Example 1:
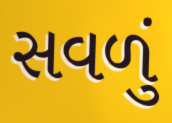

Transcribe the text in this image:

સવળું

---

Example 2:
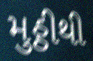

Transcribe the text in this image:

મુઠ્ઠીથી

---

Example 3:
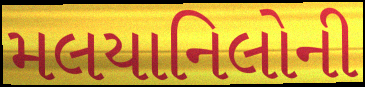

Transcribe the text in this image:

મલયાનિલોની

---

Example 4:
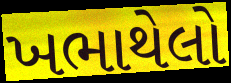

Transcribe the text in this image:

ખભાથેલો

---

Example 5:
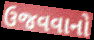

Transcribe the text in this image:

ઉજવવાનો